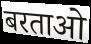
बरताओ